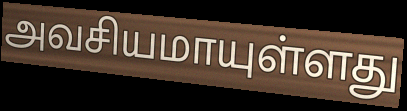
அவசியமாயுள்ளது